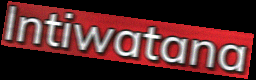
Intiwatana